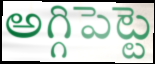
అగ్గిపెట్టె